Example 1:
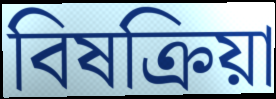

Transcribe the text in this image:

বিষক্ৰিয়া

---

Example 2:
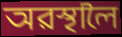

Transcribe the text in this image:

অৱস্থালৈ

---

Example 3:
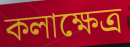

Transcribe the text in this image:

কলাক্ষেত্ৰ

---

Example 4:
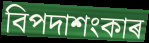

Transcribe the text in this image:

বিপদাশংকাৰ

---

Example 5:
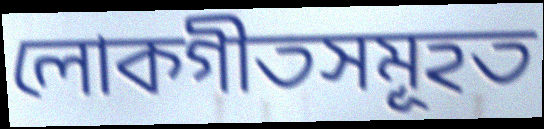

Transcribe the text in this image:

লোকগীতসমূহত